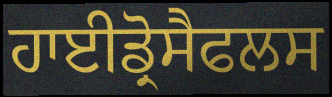
ਹਾਈਡ੍ਰੋਸੈਫਲਸ